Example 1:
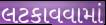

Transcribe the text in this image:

લટકાવવામાં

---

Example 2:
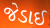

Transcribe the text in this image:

જેડાઈ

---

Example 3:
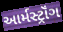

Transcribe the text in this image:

આર્મસ્ટ્રૉંગ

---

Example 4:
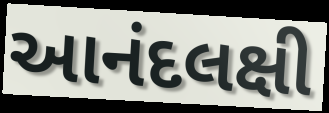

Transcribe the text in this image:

આનંદલક્ષી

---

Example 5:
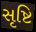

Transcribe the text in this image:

સૃષ્ટિ